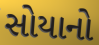
સોયાનો